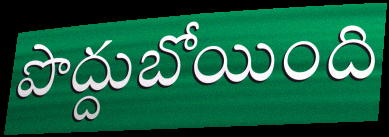
పొద్దుబోయింది